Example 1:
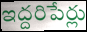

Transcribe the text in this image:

ఇద్దరిపేర్లు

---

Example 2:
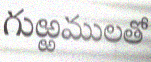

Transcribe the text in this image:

గుఱ్ఱములతో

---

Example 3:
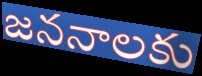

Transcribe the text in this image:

జననాలకు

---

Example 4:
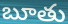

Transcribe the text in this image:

బూతు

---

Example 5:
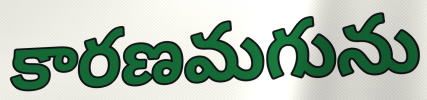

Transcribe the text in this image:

కారణమగును